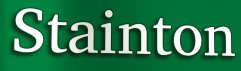
Stainton